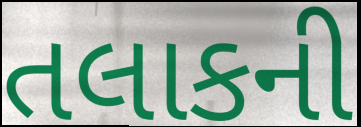
તલાકની